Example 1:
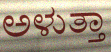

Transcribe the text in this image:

ಅಳುತ್ತಾ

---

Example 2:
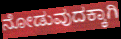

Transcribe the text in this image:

ನೋಡುವುದಕ್ಕಾಗಿ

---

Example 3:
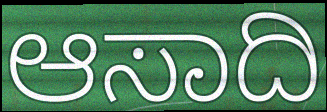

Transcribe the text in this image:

ಆಸಾದಿ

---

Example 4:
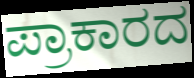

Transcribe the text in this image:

ಪ್ರಾಕಾರದ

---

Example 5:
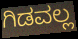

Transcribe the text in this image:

ಗಿಡವಲ್ಲ